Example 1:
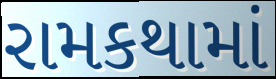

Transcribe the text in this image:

રામકથામાં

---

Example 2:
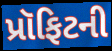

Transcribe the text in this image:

પ્રૉફિટની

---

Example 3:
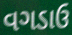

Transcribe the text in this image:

વગડાઉ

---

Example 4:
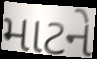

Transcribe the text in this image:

માટને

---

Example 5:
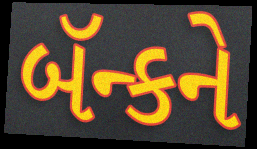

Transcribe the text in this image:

બૅન્કને